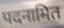
पदनामित